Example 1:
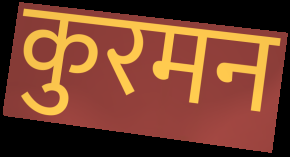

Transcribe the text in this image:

कुरमन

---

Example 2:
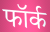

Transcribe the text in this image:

फॉर्क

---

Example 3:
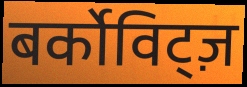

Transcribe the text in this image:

बर्कोविट्ज़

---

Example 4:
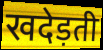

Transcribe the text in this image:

खदेड़ती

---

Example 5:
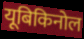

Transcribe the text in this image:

यूबिकिनोल